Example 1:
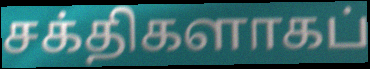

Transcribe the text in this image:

சக்திகளாகப்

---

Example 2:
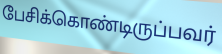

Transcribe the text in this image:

பேசிக்கொண்டிருப்பவர்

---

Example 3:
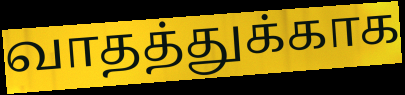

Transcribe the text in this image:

வாதத்துக்காக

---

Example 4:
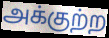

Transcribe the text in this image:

அக்குற்ற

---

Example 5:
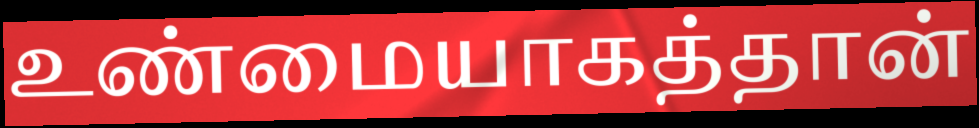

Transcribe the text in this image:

உண்மையாகத்தான்